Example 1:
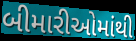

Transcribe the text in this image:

બીમારીઓમાંથી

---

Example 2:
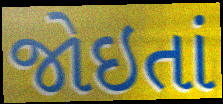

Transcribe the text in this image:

જોઇતાં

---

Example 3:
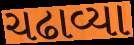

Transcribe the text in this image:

ચઢાવ્યા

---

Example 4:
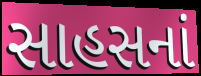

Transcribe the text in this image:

સાહસનાં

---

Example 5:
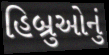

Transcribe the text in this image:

હિબ્રુઓનું